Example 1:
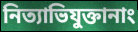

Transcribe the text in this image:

নিত্যাভিযুক্তানাং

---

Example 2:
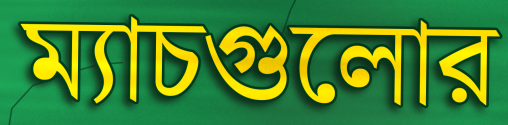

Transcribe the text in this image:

ম্যাচগুলোর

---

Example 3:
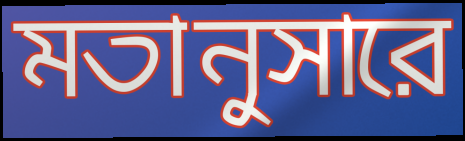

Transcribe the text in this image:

মতানুসারে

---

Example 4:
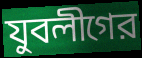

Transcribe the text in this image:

যুবলীগের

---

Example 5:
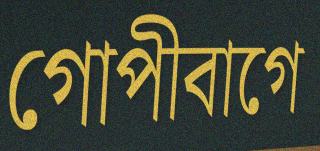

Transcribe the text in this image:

গোপীবাগে